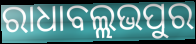
ରାଧାବଲ୍ଲଭପୁର